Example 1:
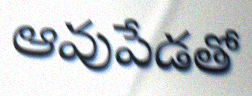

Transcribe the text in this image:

ఆవుపేడతో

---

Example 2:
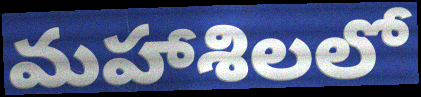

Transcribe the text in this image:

మహాశిలలో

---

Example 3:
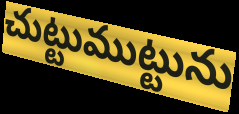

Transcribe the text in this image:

చుట్టుముట్టును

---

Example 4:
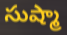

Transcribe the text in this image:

సుష్మా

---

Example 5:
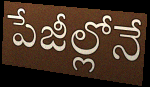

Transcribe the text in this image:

పేజీల్లోనే